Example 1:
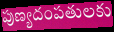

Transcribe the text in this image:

పుణ్యదంపతులకు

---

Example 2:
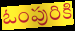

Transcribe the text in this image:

ఓంపురికి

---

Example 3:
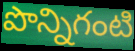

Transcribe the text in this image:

పొన్నిగంటి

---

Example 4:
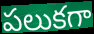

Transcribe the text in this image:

పలుకగా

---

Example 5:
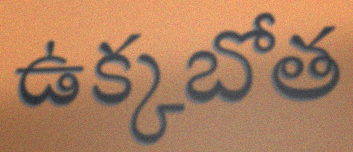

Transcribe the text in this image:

ఉక్కబోత